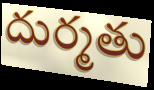
దుర్మతు